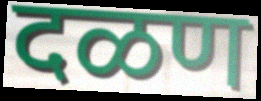
दळण